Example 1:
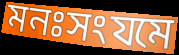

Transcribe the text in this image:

মনঃসংযমে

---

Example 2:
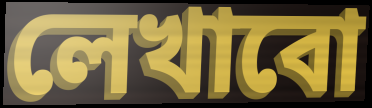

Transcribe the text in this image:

লেখাবো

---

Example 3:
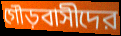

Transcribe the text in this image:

গৌড়বাসীদের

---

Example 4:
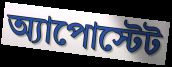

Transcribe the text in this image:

অ্যাপোস্টেট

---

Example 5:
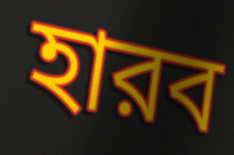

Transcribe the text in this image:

হারব